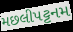
મછલીપટ્ટનમ